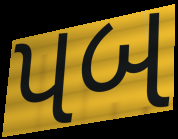
પબ